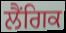
ਲੈਂਗਿਕ